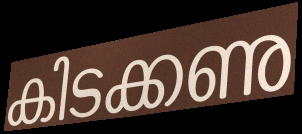
കിടക്കണു